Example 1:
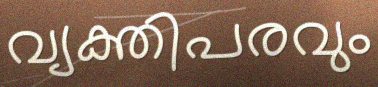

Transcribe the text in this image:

വ്യക്തിപരവും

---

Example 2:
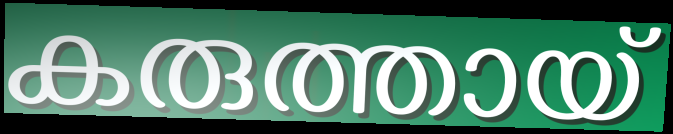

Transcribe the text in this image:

കരുത്തായ്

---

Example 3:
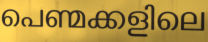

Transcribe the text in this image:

പെണ്മക്കളിലെ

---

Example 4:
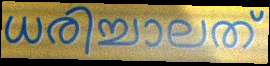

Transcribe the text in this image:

ധരിച്ചാലത്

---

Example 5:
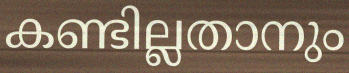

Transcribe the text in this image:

കണ്ടില്ലതാനും